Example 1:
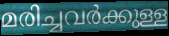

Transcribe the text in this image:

മരിച്ചവർക്കുള്ള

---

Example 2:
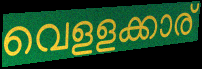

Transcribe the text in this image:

വെളളക്കാര്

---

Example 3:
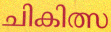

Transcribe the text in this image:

ചികിത്സ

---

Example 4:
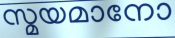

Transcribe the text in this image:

സ്മയമാനോ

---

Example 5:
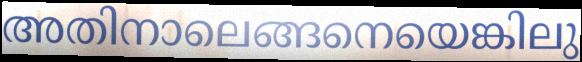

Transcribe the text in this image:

അതിനാലെങ്ങനെയെങ്കിലു